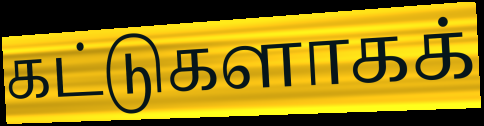
கட்டுகளாகக்